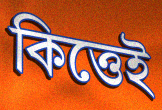
কিত্তেই